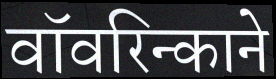
वॉवरिन्काने